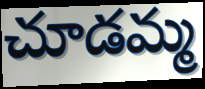
చూడమ్మ